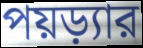
পয়ড়্যার